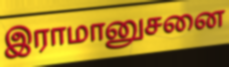
இராமானுசனை